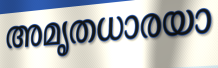
അമൃതധാരയാ